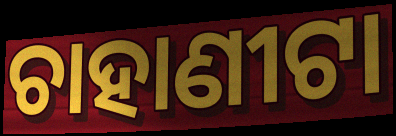
ଚାହାଣୀଟା